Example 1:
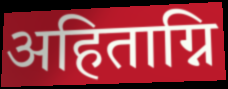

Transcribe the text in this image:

अहिताग्नि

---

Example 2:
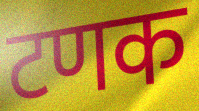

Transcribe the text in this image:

टणक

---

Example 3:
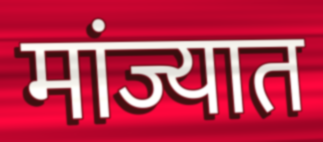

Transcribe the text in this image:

मांज्यात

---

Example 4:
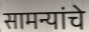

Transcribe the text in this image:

सामन्यांचे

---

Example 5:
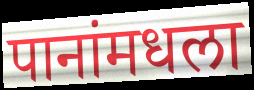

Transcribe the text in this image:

पानांमधला